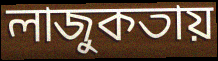
লাজুকতায়